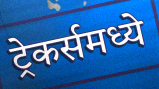
ट्रेकर्समध्ये